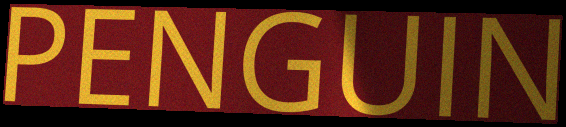
PENGUIN